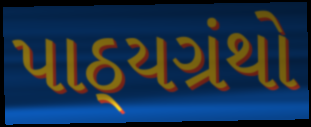
પાઠ્યગ્રંથો